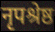
नृपश्रेष्ठ